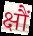
क्षौं